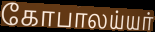
கோபாலய்யர்